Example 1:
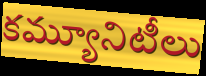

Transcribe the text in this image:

కమ్యూనిటీలు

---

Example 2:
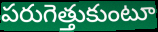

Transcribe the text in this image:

పరుగెత్తుకుంటూ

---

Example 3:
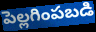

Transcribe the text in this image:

పెల్లగింపబడి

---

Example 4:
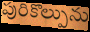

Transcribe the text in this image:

పురికొల్పును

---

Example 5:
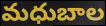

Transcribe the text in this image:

మధుబాల